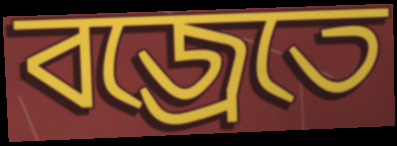
বজ্রেতে